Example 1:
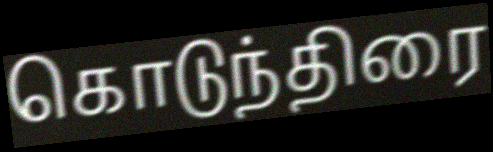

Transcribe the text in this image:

கொடுந்திரை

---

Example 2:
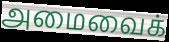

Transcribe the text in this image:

அமைவைக்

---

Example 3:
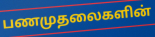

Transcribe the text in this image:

பணமுதலைகளின்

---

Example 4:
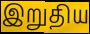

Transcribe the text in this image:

இறுதிய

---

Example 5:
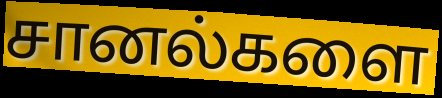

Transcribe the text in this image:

சானல்களை